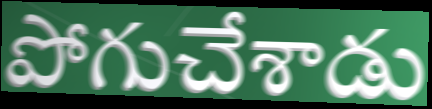
పోగుచేశాడు